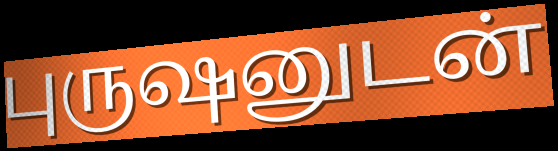
புருஷனுடன்